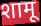
शामू